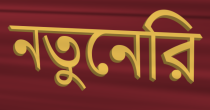
নতুনেরি